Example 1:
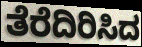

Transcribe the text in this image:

ತೆರೆದಿರಿಸಿದ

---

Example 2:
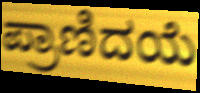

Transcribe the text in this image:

ಪ್ರಾಣಿದಯೆ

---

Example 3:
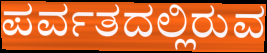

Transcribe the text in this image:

ಪರ್ವತದಲ್ಲಿರುವ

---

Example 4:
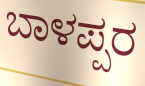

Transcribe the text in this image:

ಬಾಳಪ್ಪರ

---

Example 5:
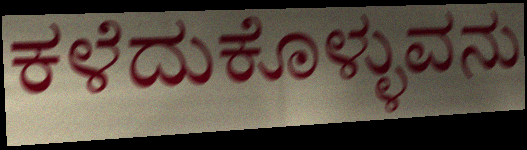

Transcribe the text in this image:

ಕಳೆದುಕೊಳ್ಳುವನು